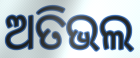
ଅତିଭଲ